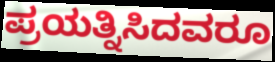
ಪ್ರಯತ್ನಿಸಿದವರೂ